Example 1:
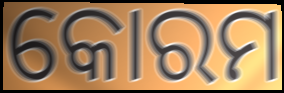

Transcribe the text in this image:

କୋରମ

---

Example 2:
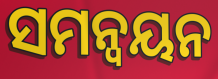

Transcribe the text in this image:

ସମନ୍ୱୟନ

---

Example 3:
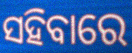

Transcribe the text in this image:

ସହିବାରେ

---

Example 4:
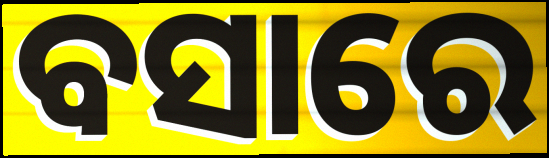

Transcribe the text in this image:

ବସାରେ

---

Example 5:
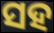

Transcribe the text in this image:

ସହ